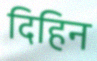
दिहिन